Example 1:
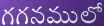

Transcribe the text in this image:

గగనములో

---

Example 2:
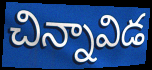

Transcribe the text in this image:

చిన్నావిడ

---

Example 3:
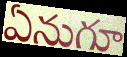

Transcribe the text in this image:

ఏనుగూ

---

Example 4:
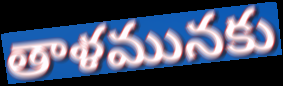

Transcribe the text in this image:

తాళమునకు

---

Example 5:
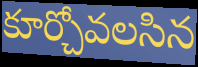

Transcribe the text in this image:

కూర్చోవలసిన